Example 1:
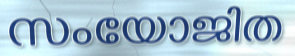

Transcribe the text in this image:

സംയോജിത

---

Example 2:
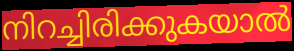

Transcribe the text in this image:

നിറച്ചിരിക്കുകയാൽ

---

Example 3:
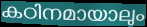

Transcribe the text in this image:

കഠിനമായാലും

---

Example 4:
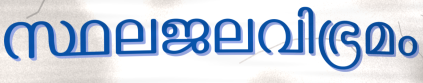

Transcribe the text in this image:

സ്ഥലജലവിഭ്രമം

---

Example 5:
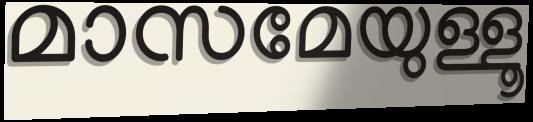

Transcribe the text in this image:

മാസമേയുള്ളൂ